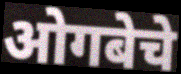
ओगबेचे